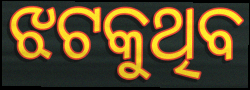
ଝଟକୁଥିବ